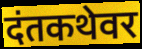
दंतकथेवर